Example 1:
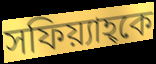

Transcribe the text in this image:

সফিয়্যাহ্কে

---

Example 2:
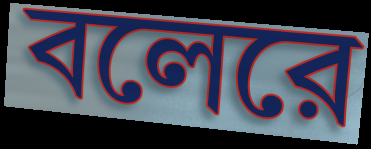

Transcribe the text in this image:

বলেরে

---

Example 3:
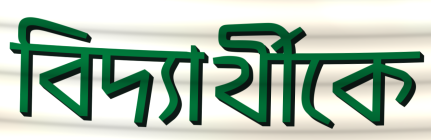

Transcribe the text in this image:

বিদ্যার্থীকে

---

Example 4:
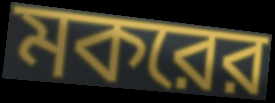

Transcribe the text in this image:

মকরের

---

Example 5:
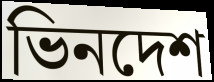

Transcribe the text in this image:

ভিনদেশ